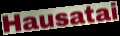
Hausatai